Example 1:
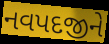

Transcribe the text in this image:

નવપદજીને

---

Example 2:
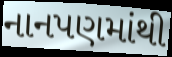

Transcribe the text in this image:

નાનપણમાંથી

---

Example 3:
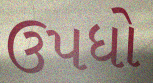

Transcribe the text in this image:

ઉપધો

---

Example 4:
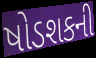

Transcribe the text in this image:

ષોડશકની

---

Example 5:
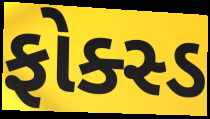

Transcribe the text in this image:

ફોક્સ્ડ